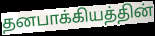
தனபாக்கியத்தின்